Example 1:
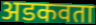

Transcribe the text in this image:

अडकवता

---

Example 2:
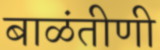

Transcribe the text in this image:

बाळंतीणी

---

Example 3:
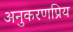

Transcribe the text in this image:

अनुकरणप्रिय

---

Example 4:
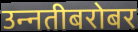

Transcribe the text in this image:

उन्नतीबरोबर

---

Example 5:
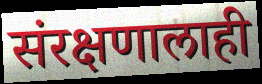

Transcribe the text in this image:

संरक्षणालाही